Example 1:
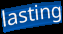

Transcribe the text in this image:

lasting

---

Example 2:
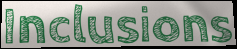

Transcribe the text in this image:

Inclusions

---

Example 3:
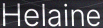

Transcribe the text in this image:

Helaine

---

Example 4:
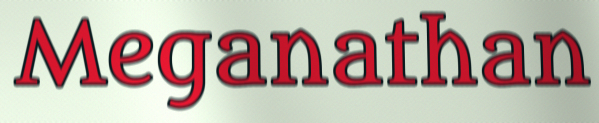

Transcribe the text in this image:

Meganathan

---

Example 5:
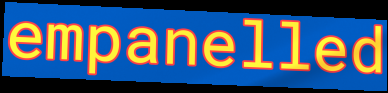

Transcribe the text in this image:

empanelled